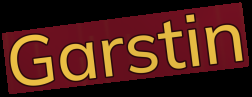
Garstin